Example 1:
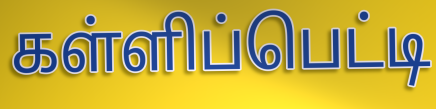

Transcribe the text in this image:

கள்ளிப்பெட்டி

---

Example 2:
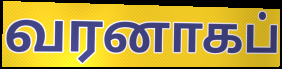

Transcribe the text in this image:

வரனாகப்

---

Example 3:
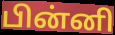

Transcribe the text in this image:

பின்னி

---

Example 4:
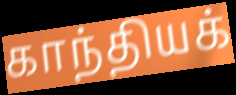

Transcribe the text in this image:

காந்தியக்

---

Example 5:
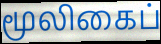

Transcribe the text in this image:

மூலிகைப்